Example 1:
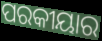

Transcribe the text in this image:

ପରକୀୟାର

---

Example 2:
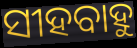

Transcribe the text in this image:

ସୀହବାହୁ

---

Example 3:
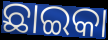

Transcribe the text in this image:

ଛାଇକା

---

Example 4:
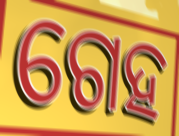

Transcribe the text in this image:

ଗେହ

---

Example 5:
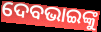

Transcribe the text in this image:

ଦେବଭାଇଙ୍କୁ